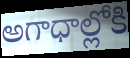
అగాధాల్లోకి